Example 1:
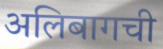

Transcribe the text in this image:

अलिबागची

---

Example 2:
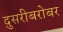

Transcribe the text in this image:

दुसरीबरोबर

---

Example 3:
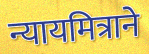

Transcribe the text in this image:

न्यायमित्राने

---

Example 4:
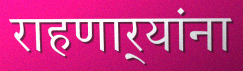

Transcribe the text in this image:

राहणार्यांना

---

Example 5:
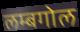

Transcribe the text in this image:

लम्बगोल